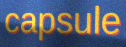
capsule